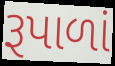
રૂપાળાં